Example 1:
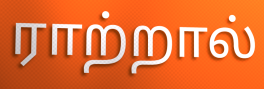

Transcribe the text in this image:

ராற்றால்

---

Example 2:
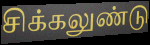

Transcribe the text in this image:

சிக்கலுண்டு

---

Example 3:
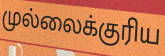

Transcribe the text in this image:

முல்லைக்குரிய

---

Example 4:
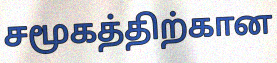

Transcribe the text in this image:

சமூகத்திற்கான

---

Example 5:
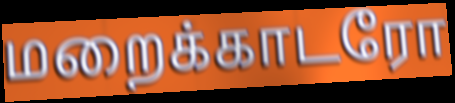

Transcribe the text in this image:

மறைக்காடரோ